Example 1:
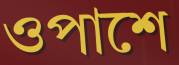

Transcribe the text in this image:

ওপাশে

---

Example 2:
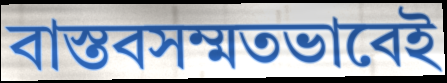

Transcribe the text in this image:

বাস্তবসম্মতভাবেই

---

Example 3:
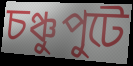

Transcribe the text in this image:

চঞ্চুপুটে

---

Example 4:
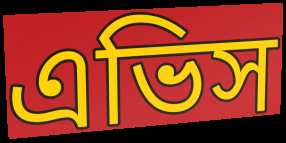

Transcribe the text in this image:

এভিস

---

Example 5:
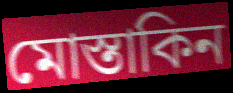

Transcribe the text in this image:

মোস্তাকিন